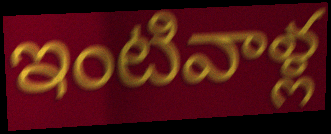
ఇంటివాళ్ల